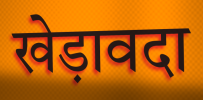
खेड़ावदा